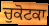
ਚੁਕੋਟਕਾ